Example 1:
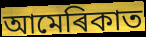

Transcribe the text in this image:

আমেৰিকাত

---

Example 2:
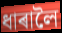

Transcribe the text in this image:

ধাৰালৈ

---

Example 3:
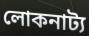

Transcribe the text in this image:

লোকনাট্য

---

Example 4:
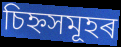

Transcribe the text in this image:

চিহ্নসমূহৰ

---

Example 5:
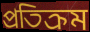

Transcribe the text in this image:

প্ৰতিক্ৰম